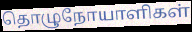
தொழுநோயாளிகள்